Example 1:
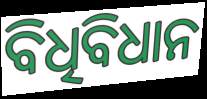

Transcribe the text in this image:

ବିଧିବିଧାନ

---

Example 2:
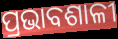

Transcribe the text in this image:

ପ୍ରଭାବଶାଳୀ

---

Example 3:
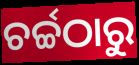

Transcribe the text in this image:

ଚର୍ଚ୍ଚଠାରୁ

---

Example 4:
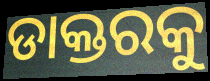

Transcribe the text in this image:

ଡାକ୍ତରକୁ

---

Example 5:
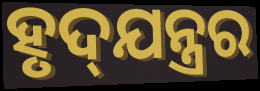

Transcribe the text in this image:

ହୃଦ୍‍ଯନ୍ତ୍ରର